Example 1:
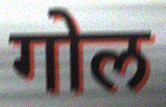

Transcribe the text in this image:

गोल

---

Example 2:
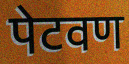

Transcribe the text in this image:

पेटवण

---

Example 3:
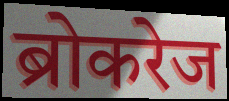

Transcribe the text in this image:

ब्रोकरेज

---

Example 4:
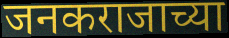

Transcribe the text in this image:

जनकराजाच्या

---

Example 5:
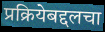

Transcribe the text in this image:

प्रक्रियेबद्दलचा